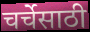
चर्चेसाठी